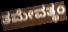
ತಮೇವತ್ಥಂ